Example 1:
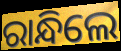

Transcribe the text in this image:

ରାନ୍ଧିଲେ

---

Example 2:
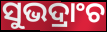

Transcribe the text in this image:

ସୁଭଦ୍ରାଂଚ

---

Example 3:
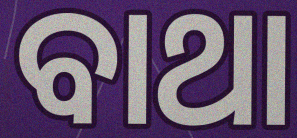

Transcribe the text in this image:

ବାଥା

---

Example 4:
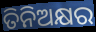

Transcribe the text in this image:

ତିନିଅକ୍ଷର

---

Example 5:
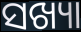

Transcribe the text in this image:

ସଖ୍ୟା